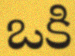
ఒకి